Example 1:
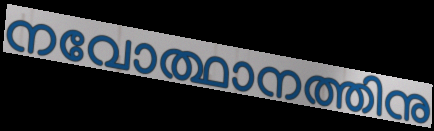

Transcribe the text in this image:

നവോത്ഥാനത്തിനു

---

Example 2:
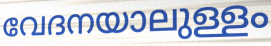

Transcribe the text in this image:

വേദനയാലുള്ളം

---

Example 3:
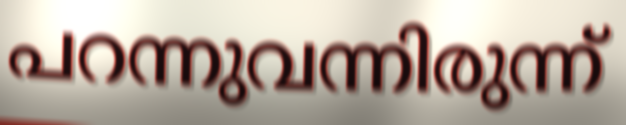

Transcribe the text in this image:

പറന്നുവന്നിരുന്ന്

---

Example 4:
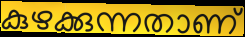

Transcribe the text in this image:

കുഴക്കുന്നതാണ്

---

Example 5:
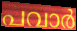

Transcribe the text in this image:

പവാർ